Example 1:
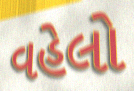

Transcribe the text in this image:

વહેલો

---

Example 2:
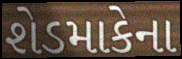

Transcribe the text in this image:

શેડમાકેના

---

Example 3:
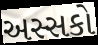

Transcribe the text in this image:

અસ્સકો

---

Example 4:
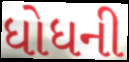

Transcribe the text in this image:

ધોધની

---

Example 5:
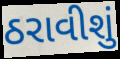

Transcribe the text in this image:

ઠરાવીશું